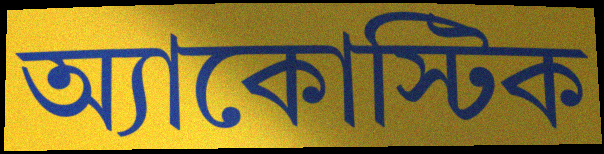
অ্যাকোস্টিক